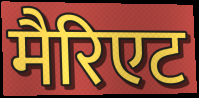
मैरिएट